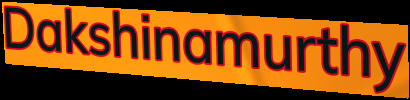
Dakshinamurthy